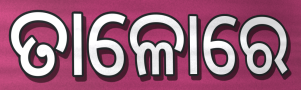
ତାଳୋରେ